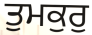
ਤੁਮਕੁਰੁ